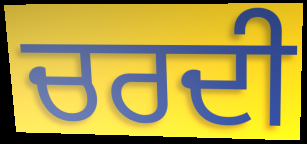
ਚਰਦੀ